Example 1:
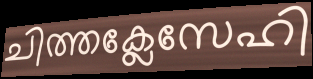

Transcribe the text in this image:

ചിത്തക്ലേസേഹി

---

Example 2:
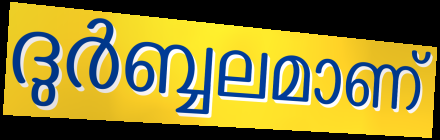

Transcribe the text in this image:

ദുർബ്ബലമാണ്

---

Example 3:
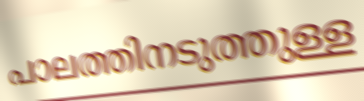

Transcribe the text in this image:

പാലത്തിനടുത്തുള്ള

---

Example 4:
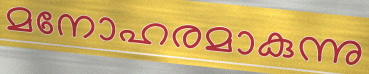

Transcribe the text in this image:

മനോഹരമാകുന്നു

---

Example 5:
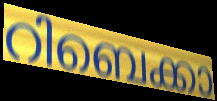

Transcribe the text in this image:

റിബെക്കാ